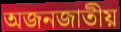
অজনজাতীয়